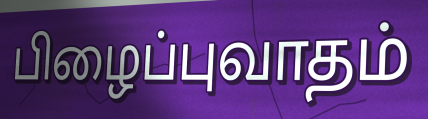
பிழைப்புவாதம்